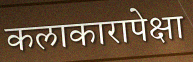
कलाकारापेक्षा